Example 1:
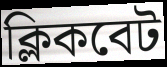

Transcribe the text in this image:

ক্লিকবেট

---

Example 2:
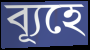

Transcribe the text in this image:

ব্যূহে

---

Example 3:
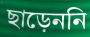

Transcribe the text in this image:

ছাড়েননি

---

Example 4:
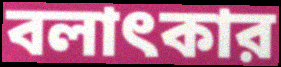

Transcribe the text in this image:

বলাৎকার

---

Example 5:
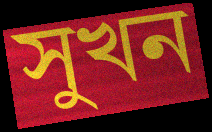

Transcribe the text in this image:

সুখন